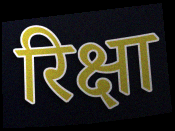
रिक्षा